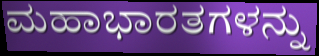
ಮಹಾಭಾರತಗಳನ್ನು